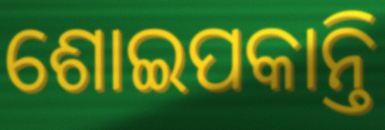
ଶୋଇପକାନ୍ତି